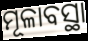
ମୂଳାବସ୍ଥା